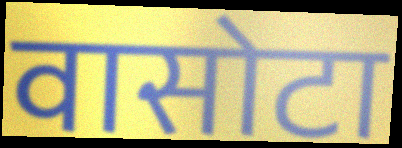
वासोटा